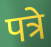
पत्रे